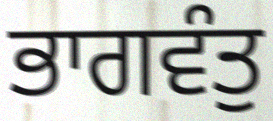
ਭਾਗਵੰਤੁ